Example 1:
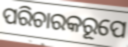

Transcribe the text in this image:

ପରିଚାରକରୂପେ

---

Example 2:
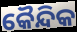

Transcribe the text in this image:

କୈନ୍ଦିକ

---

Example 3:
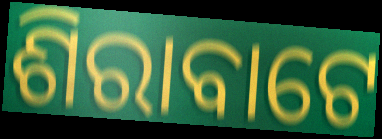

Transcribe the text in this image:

ଶିରାବାଟେ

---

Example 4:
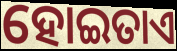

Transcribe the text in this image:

ହୋଇତାଏ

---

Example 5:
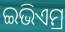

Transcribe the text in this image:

ଇଭିଏମ୍ର